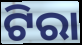
ଟିରା